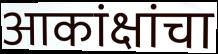
आकांक्षांचा